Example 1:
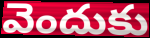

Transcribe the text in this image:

వెందుకు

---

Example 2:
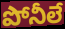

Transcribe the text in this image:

పోనీలే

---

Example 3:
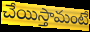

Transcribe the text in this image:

చేయిస్తామంటే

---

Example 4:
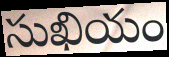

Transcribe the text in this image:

సుఖియం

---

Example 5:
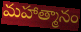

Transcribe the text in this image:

మహాత్మానం